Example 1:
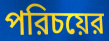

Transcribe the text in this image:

পরিচয়ের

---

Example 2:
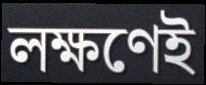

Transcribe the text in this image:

লক্ষণেই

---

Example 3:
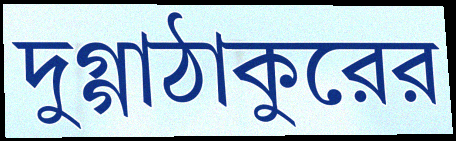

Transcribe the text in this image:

দুগ্গাঠাকুরের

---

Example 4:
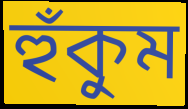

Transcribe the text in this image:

হুঁকুম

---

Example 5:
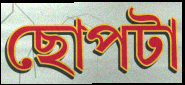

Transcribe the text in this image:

ছোপটা